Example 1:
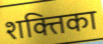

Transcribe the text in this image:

शक्तिका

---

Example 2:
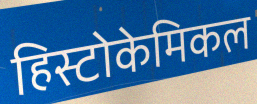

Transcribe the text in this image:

हिस्टोकेमिकल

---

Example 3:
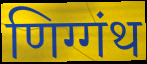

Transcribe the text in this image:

णिग्गंथ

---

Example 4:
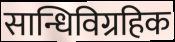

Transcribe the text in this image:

सान्धिविग्रहिक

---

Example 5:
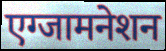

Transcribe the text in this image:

एग्जामनेशन